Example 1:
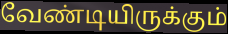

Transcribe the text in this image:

வேண்டியிருக்கும்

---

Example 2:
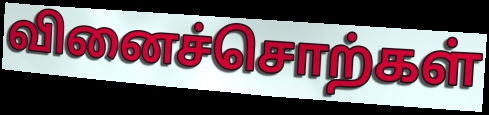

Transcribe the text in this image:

வினைச்சொற்கள்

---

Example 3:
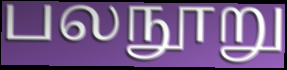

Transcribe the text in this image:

பலநூறு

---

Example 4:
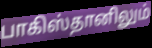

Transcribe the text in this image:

பாகிஸ்தானிலும்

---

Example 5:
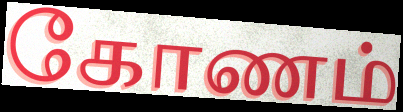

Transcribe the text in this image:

கோணம்